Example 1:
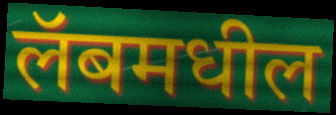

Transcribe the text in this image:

लॅबमधील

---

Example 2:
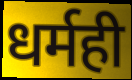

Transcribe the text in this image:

धर्मही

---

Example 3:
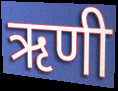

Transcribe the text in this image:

ऋणी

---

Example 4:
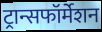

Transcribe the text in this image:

ट्रान्सफॉर्मेशन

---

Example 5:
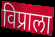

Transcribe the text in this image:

विप्राला